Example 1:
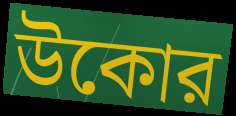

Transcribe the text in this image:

উকোর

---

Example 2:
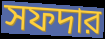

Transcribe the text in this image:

সফদার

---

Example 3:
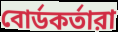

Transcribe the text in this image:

বোর্ডকর্তারা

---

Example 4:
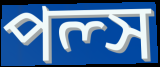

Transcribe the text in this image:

পল্স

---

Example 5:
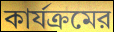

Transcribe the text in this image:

কার্যক্রমের